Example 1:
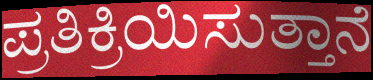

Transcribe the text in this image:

ಪ್ರತಿಕ್ರಿಯಿಸುತ್ತಾನೆ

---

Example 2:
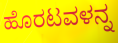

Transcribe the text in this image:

ಹೊರಟವಳನ್ನ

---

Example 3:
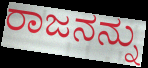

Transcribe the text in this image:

ರಾಜನನ್ನು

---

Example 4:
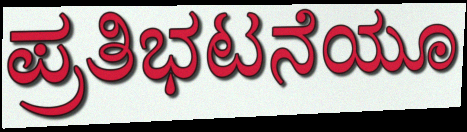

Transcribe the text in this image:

ಪ್ರತಿಭಟನೆಯೂ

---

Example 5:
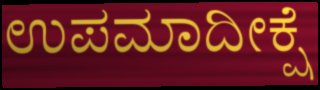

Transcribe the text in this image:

ಉಪಮಾದೀಕ್ಷೆ